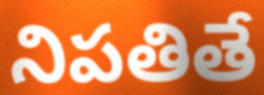
నిపతితే